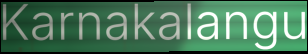
Karnakalangu